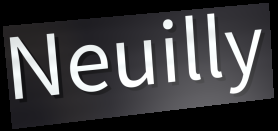
Neuilly